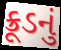
ક્રૂડનું